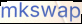
mkswap